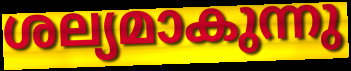
ശല്യമാകുന്നു